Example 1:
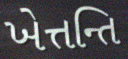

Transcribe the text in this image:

ખેત્તન્તિ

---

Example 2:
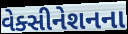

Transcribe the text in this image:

વેક્સીનેશનના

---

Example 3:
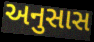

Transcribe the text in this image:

અનુસાસ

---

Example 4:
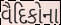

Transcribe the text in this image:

વૈદિકોના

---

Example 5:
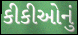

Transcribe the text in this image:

કીકીઓનું